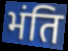
भंति